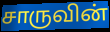
சாருவின்